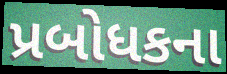
પ્રબોધકના